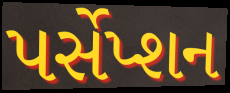
પર્સેપ્શન